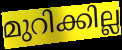
മുറിക്കില്ല